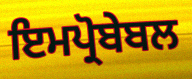
ਇਮਪ੍ਰੋਬੇਬਲ